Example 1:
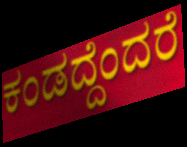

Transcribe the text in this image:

ಕಂಡದ್ದೆಂದರೆ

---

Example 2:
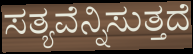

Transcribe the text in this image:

ಸತ್ಯವೆನ್ನಿಸುತ್ತದೆ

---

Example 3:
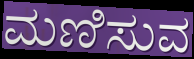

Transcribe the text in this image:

ಮಣಿಸುವ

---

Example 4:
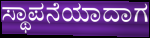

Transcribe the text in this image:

ಸ್ಥಾಪನೆಯಾದಾಗ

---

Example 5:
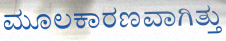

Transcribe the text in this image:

ಮೂಲಕಾರಣವಾಗಿತ್ತು